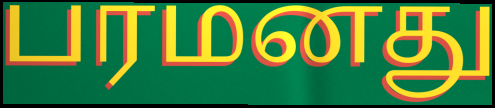
பரமனது